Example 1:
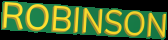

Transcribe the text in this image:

ROBINSON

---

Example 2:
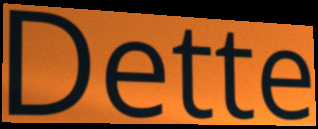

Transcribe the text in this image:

Dette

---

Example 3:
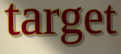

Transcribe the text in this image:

target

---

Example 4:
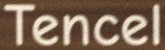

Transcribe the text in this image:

Tencel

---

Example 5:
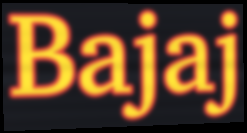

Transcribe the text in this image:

Bajaj